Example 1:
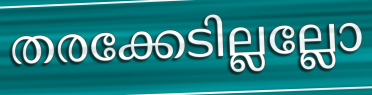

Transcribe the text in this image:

തരക്കേടില്ലല്ലോ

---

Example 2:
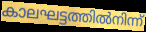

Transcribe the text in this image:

കാലഘട്ടത്തിൽനിന്ന്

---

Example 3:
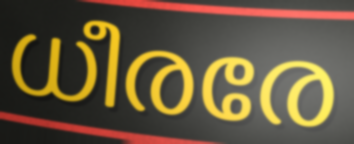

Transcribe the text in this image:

ധീരരേ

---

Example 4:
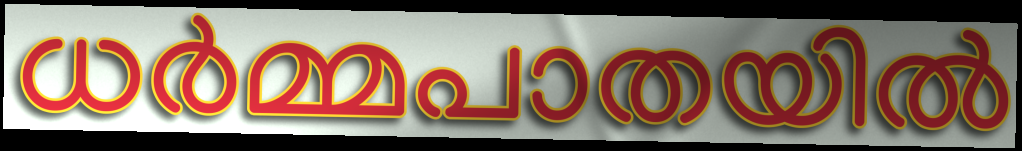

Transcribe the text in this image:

ധർമ്മപാതയിൽ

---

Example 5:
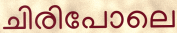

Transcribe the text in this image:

ചിരിപോലെ